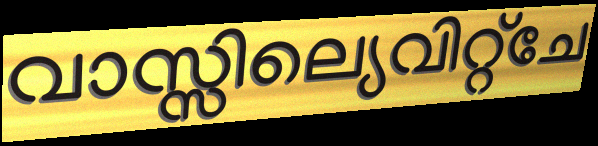
വാസ്സില്യെവിറ്റ്ചേ